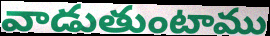
వాడుతుంటాము